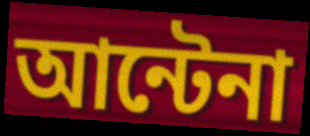
আন্টেনা